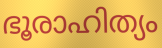
ഭൂരാഹിത്യം